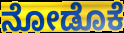
ನೋಡೊಕೆ